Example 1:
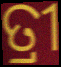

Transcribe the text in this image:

ତ୍ରୀ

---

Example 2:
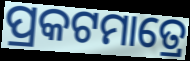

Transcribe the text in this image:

ପ୍ରକଟମାତ୍ରେ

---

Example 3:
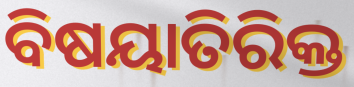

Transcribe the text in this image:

ବିଷୟାତିରିକ୍ତ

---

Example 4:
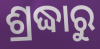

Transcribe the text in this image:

ଶ୍ରଦ୍ଧାରୁ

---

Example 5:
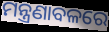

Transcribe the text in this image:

ମନ୍ତ୍ରଣାବଳରେ